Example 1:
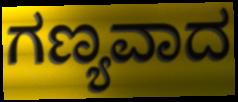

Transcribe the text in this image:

ಗಣ್ಯವಾದ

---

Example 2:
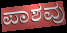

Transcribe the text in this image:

ಪಾಶವು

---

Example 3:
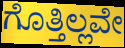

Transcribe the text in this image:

ಗೊತ್ತಿಲ್ಲವೇ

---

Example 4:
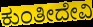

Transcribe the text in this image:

ಕುಂತೀದೇವಿ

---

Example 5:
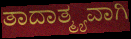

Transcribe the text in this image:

ತಾದಾತ್ಮ್ಯವಾಗಿ